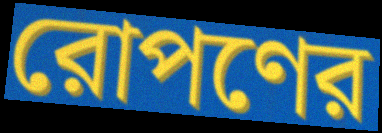
রোপণের